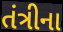
તંત્રીના